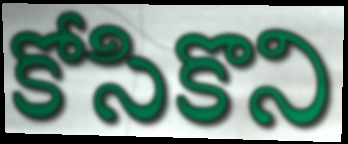
కోసికొని